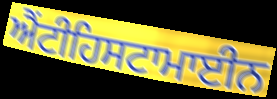
ਐਂਟੀਹਿਸਟਾਮਾਈਨ